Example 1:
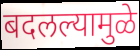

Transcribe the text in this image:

बदलल्यामुळे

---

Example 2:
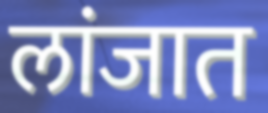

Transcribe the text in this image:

लांजात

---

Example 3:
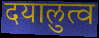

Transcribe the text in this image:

दयालुत्व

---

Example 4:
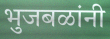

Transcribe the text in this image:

भुजबळांनी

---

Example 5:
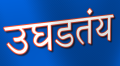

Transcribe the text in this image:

उघडतंय